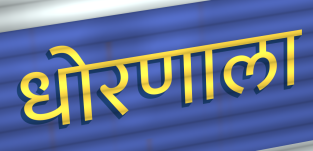
धोरणाला